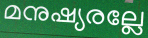
മനുഷ്യരല്ലേ